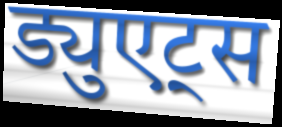
ड्युएट्स